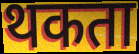
थकता